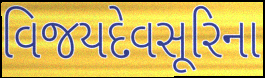
વિજયદેવસૂરિના